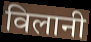
विलानी